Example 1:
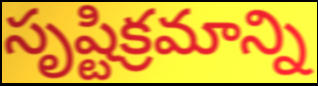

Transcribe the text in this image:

సృష్టిక్రమాన్ని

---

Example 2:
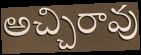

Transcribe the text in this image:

అచ్చిరావు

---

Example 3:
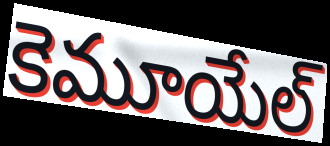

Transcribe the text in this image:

కెమూయేల్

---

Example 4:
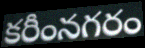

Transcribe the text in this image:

కరీంనగరం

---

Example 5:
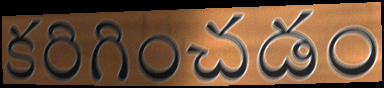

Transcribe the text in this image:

కరిగించడం